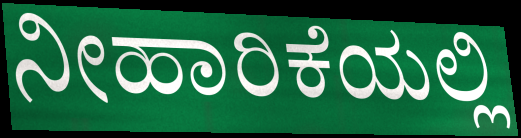
ನೀಹಾರಿಕೆಯಲ್ಲಿ